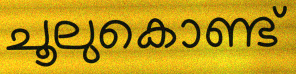
ചൂലുകൊണ്ട്